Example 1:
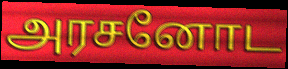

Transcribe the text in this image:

அரசனோட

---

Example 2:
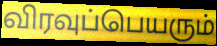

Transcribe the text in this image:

விரவுப்பெயரும்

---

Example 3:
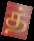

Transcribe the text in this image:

த்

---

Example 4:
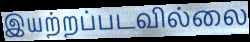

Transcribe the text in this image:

இயற்றப்படவில்லை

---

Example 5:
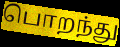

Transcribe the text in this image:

பொறந்து